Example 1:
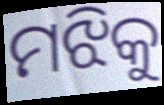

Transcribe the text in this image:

ମଝିକୁ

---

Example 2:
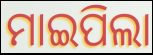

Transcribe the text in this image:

ମାଇପିଲା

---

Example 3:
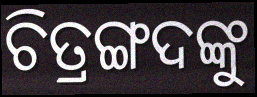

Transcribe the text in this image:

ଚିତ୍ରଙ୍ଗଦଙ୍କୁ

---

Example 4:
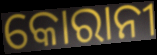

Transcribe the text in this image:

କୋରାନୀ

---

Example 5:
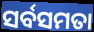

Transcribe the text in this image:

ସର୍ବସମତା